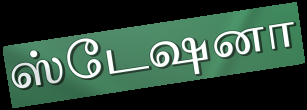
ஸ்டேஷனா